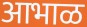
आभाळ